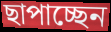
ছাপাচ্ছেন